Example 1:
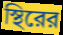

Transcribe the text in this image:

স্থিরের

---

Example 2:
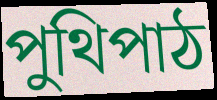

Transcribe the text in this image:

পুথিপাঠ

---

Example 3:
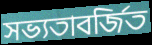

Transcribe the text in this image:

সভ্যতাবর্জিত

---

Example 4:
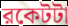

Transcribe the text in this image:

রকেটটা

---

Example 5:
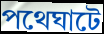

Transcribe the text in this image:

পথেঘাটে